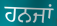
ਹਨਜਾਂ